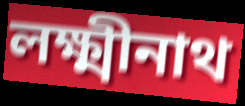
লক্ষ্মীনাথ